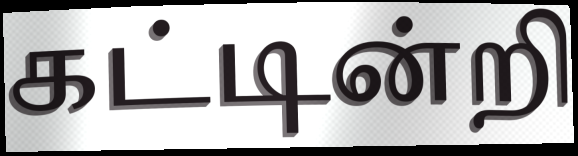
கட்டின்றி